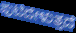
ಪುಟಿದೇಳುತ್ತದೆ